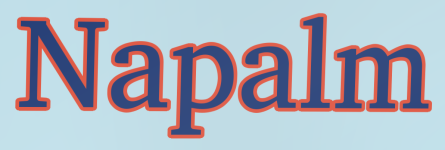
Napalm